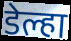
डेल्हा